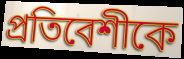
প্রতিবেশীকে